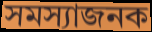
সমস্যাজনক